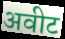
अवीट